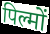
पिल्मों